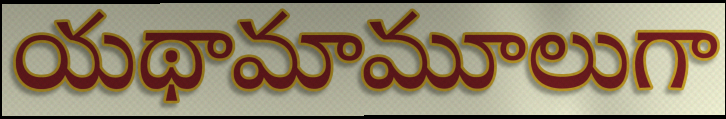
యథామామూలుగా